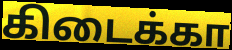
கிடைக்கா